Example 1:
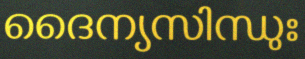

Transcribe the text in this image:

ദൈന്യസിന്ധുഃ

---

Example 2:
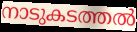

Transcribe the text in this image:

നാടുകടത്തൽ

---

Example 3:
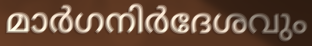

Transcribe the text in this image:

മാർഗനിർദേശവും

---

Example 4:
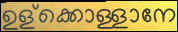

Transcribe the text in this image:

ഉള്ക്കൊള്ളാനേ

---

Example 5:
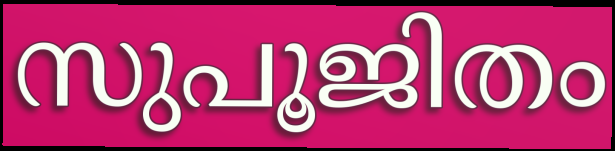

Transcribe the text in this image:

സുപൂജിതം